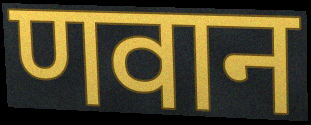
णवान